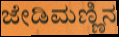
ಜೇಡಿಮಣ್ಣಿನ